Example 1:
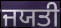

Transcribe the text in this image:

ਜਯਤੀ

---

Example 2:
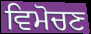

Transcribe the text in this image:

ਵਿਮੋਚਣ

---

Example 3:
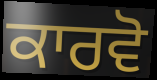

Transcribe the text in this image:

ਕਾਰਵੋ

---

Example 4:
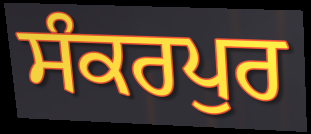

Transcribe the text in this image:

ਸੰਕਰਪੁਰ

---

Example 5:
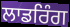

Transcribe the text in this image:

ਲਾਡਰਿੰਗ